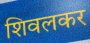
शिवलकर